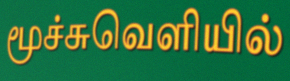
மூச்சுவெளியில்